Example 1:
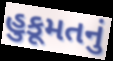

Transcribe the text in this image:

હુકૂમતનું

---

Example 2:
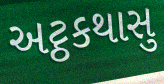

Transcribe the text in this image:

અટ્ઠકથાસુ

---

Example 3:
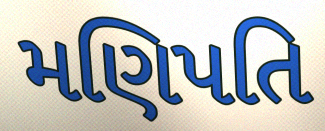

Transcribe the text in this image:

મણિપતિ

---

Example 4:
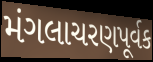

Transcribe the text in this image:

મંગલાચરણપૂર્વક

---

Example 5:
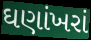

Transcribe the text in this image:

ઘણાંખરાં